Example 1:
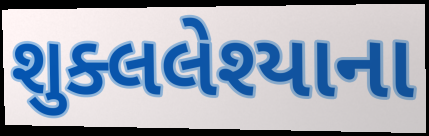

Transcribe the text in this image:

શુક્લલેશ્યાના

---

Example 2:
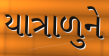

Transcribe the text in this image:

યાત્રાળુને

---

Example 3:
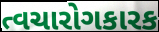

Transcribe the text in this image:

ત્વચારોગકારક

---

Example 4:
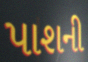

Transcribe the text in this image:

પાશની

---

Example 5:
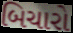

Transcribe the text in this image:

બિચારો